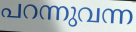
പറന്നുവന്ന